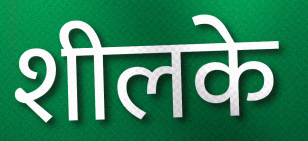
शीलके